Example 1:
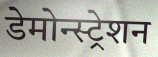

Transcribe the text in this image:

डेमोन्स्ट्रेशन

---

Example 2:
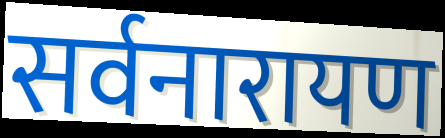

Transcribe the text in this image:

सर्वनारायण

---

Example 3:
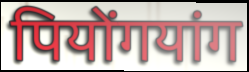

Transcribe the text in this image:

पियोंगयांग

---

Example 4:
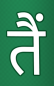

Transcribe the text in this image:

तैं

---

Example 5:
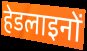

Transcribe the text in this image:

हेडलाइनों